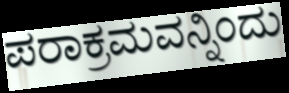
ಪರಾಕ್ರಮವನ್ನಿಂದು